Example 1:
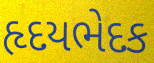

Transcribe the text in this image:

હૃદયભેદક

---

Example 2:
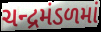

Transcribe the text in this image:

ચન્દ્રમંડળમાં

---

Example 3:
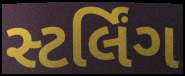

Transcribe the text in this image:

સ્ટર્લિંગ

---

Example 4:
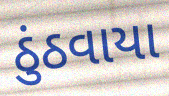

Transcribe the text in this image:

ઠુંઠવાયા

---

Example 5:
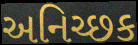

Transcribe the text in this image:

અનિચ્છક